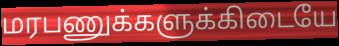
மரபணுக்களுக்கிடையே